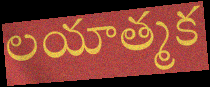
లయాత్మక